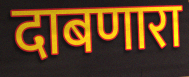
दाबणारा